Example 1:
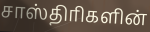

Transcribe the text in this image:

சாஸ்திரிகளின்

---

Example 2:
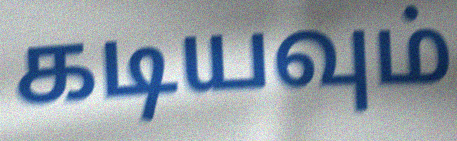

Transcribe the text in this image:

கடியவும்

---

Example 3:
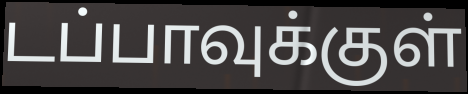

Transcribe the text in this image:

டப்பாவுக்குள்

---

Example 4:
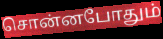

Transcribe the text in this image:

சொன்னபோதும்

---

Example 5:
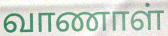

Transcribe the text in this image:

வாணாள்